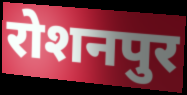
रोशनपुर